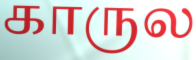
காருல